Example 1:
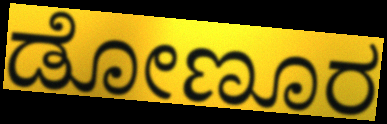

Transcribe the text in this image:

ಡೋಣೂರ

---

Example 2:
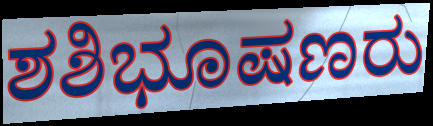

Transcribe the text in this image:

ಶಶಿಭೂಷಣರು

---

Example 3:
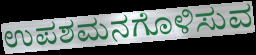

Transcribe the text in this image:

ಉಪಶಮನಗೊಳಿಸುವ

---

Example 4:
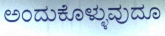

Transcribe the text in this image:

ಅಂದುಕೊಳ್ಳುವುದೂ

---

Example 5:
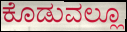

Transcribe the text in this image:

ಕೊಡುವಲ್ಲೂ